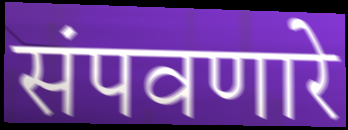
संपवणारे